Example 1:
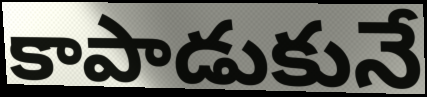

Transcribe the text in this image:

కాపాడుకునే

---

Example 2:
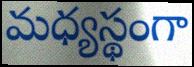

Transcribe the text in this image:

మధ్యస్థంగా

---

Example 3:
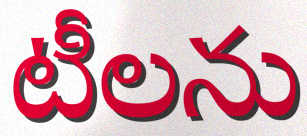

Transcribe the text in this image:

టీలను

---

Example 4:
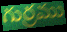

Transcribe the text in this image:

గుర్రము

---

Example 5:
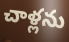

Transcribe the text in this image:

చాళ్లను